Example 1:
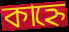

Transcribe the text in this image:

কাহ্নে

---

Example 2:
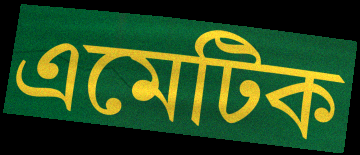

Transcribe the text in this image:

এমেটিক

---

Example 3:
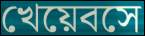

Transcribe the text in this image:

খেয়েবসে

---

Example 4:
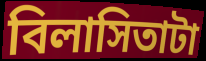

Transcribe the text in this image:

বিলাসিতাটা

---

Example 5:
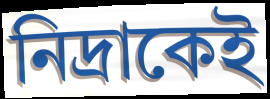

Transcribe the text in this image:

নিদ্রাকেই